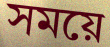
সময়ে